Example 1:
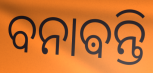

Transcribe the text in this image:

ବନାଵନ୍ତି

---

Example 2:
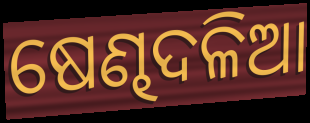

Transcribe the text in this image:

ଷେଣ୍ଢଦଳିଆ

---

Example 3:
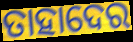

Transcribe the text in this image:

ତାହାଦେର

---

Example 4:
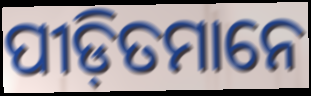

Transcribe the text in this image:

ପୀଡ଼ିତମାନେ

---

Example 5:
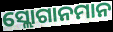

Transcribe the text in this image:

ସ୍ଲୋଗାନମାନ